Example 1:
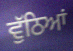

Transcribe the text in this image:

ਵੁੱਠਿਆਂ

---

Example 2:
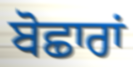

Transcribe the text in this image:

ਬੋਛਾਰਾਂ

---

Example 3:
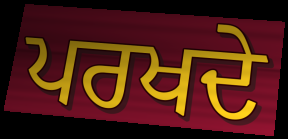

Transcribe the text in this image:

ਪਰਖਦੇ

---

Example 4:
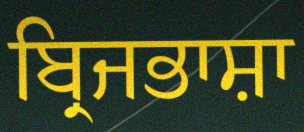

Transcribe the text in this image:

ਬ੍ਰਿਜਭਾਸ਼ਾ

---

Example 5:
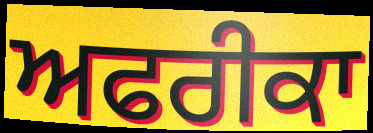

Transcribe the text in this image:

ਅਫਰੀਕਾ